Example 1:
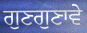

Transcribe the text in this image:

ਗੁਣਗੁਣਾਵੇ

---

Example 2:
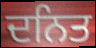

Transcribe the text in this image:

ਦਨਿਤ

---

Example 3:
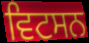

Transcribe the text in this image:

ਵਿਟਸਨ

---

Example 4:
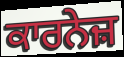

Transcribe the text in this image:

ਕਾਰਨੇਜ਼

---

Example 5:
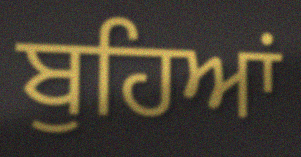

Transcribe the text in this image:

ਬੁਹਿਆਂ